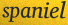
spaniel